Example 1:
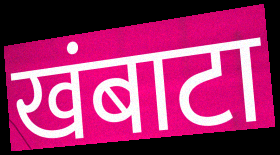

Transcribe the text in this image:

खंबाटा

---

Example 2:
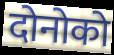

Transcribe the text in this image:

दोनोको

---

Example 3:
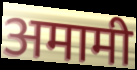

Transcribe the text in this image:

अमामी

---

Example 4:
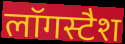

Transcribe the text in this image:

लॉगस्टैश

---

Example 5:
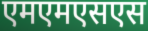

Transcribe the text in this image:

एमएमएसएस